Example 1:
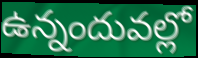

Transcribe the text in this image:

ఉన్నందువల్లో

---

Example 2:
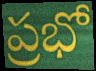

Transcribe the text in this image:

ప్రభో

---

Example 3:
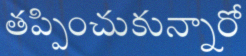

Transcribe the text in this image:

తప్పించుకున్నారో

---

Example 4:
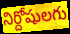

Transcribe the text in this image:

నిర్దోషులగు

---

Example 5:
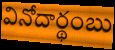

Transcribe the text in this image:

వినోదార్థంబు